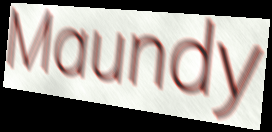
Maundy